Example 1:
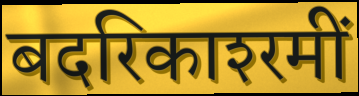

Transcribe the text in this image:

बदरिकाश्रमीं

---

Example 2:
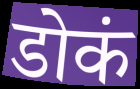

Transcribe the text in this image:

डोकं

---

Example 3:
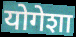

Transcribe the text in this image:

योगेशा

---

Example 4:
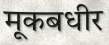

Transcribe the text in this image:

मूकबधीर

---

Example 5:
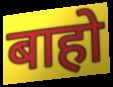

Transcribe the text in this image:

बाहो